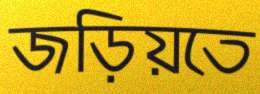
জড়িয়তে